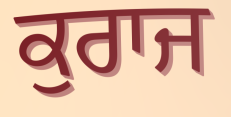
ਕੁਰਾਜ